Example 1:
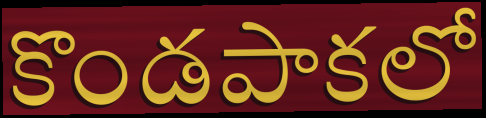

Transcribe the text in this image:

కొండపాకలో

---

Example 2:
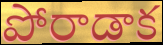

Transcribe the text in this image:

పోరాడాక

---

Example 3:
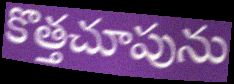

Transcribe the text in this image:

కొత్తచూపును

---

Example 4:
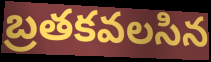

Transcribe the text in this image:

బ్రతకవలసిన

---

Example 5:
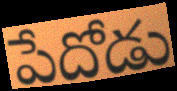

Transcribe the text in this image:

పేదోడు